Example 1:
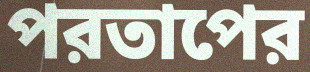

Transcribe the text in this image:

পরতাপের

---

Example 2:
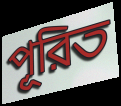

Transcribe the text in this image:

পূরিত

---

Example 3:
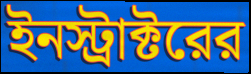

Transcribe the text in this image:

ইনস্ট্রাক্টরের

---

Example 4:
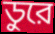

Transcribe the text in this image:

ডুরে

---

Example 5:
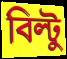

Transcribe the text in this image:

বিল্টু